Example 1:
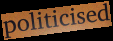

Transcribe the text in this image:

politicised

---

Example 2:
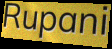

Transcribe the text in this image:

Rupani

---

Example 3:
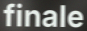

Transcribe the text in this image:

finale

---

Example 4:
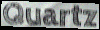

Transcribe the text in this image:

Quartz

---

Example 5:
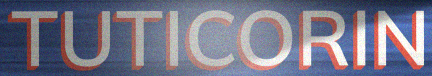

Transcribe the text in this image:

TUTICORIN